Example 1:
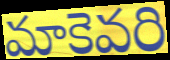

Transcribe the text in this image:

మాకెవరి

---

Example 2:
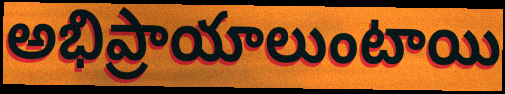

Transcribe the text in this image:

అభిప్రాయాలుంటాయి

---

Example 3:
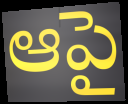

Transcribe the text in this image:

ఆపై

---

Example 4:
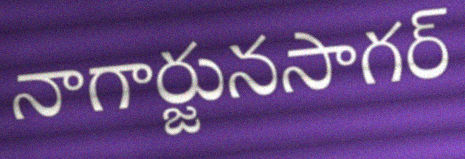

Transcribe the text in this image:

నాగార్జునసాగర్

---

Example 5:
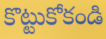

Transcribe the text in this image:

కొట్టుకోకండి